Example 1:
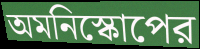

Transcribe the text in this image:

অমনিস্কোপের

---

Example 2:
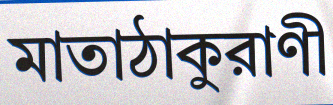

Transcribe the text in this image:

মাতাঠাকুরাণী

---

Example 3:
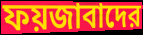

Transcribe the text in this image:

ফয়জাবাদের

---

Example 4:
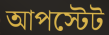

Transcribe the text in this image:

আপস্টেট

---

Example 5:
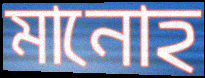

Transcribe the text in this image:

মানোহ